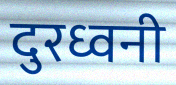
दुरध्वनी